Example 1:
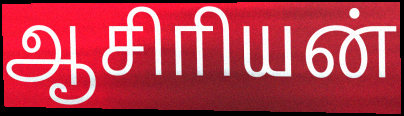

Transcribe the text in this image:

ஆசிரியன்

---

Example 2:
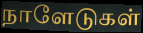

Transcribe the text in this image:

நாளேடுகள்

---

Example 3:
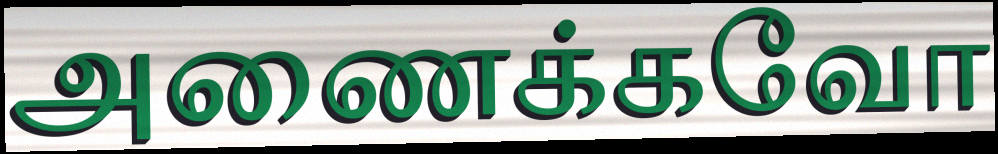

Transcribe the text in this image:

அணைக்கவோ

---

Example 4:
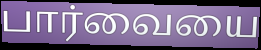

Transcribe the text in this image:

பார்வையை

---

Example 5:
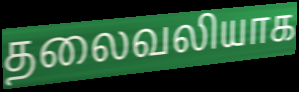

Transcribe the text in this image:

தலைவலியாக